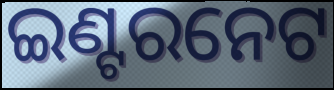
ଇଣ୍ଟରନେଟ